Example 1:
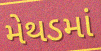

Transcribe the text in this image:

મેથડમાં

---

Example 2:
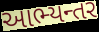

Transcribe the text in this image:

આભ્યન્તર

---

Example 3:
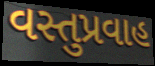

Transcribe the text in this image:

વસ્તુપ્રવાહ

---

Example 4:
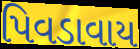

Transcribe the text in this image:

પિવડાવાય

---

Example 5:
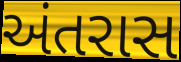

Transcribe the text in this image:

અંતરાસ